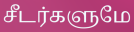
சீடர்களுமே